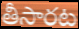
తీసారట